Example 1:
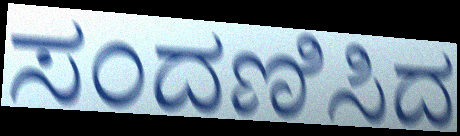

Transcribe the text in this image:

ಸಂದಣಿಸಿದ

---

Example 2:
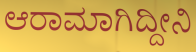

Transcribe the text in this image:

ಆರಾಮಾಗಿದ್ದೀನಿ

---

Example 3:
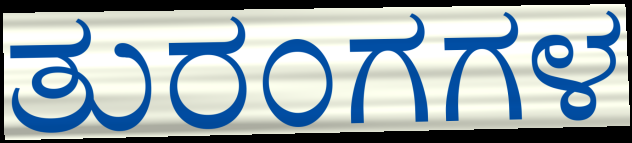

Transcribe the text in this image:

ತುರಂಗಗಳ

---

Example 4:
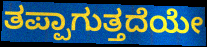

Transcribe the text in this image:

ತಪ್ಪಾಗುತ್ತದೆಯೇ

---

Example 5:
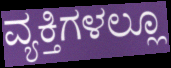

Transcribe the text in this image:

ವ್ಯಕ್ತಿಗಳಲ್ಲೂ